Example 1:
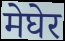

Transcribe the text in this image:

मेघेर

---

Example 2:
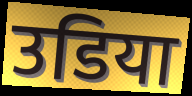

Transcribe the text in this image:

उडिया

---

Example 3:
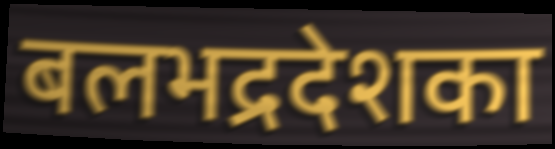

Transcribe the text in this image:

बलभद्रदेशका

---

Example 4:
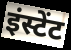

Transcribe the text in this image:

इंस्टेंट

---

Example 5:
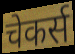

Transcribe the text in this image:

चेकर्स